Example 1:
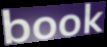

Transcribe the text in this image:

book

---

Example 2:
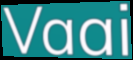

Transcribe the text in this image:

Vaai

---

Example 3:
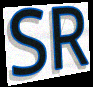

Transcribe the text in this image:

SR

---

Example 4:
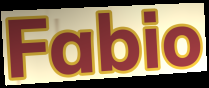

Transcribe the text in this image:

Fabio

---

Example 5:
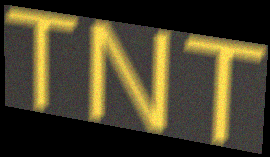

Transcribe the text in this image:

TNT